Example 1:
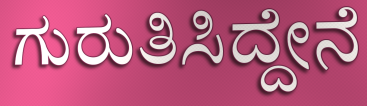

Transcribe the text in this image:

ಗುರುತಿಸಿದ್ದೇನೆ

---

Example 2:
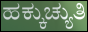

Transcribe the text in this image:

ಹಕ್ಕುಚ್ಯುತಿ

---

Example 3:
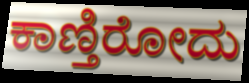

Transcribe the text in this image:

ಕಾಣ್ತಿರೋದು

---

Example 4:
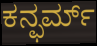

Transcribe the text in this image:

ಕನ್ಫರ್ಮ್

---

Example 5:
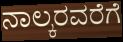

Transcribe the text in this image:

ನಾಲ್ಕರವರೆಗೆ